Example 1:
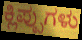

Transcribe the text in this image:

ಕ್ಲಿಪ್ಪುಗಳು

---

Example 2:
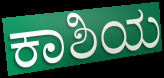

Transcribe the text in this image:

ಕಾಶಿಯ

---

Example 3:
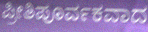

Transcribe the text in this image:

ಪ್ರೀತಿಪೂರ್ವಕವಾದ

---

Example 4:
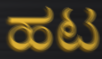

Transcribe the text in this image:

ಹಟ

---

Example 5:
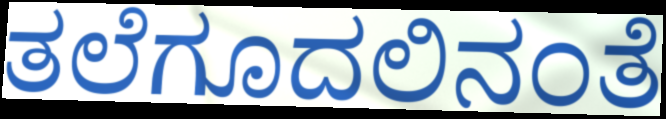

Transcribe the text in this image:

ತಲೆಗೂದಲಿನಂತೆ